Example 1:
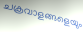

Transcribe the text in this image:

ചക്രവാളങ്ങളെയും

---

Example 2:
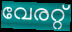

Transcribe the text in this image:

വേരറ്റ്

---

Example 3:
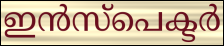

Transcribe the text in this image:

ഇൻസ്പെക്ടർ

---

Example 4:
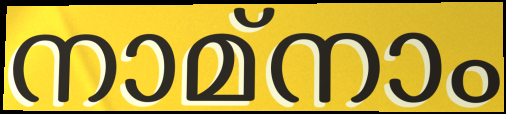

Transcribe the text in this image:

നാമ്നാം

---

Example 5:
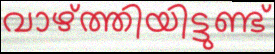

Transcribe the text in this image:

വാഴ്ത്തിയിട്ടുണ്ട്